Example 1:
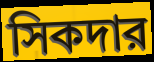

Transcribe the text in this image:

সিকদার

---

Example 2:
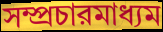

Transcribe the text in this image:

সম্প্রচারমাধ্যম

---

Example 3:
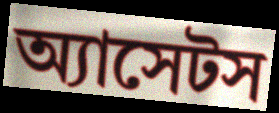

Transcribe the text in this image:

অ্যাসেটস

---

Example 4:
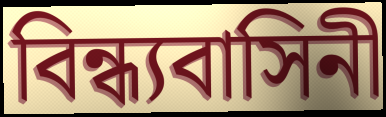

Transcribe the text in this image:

বিন্ধ্যবাসিনী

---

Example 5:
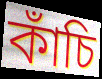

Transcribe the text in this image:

কাঁচি